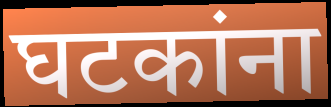
घटकांना